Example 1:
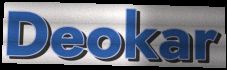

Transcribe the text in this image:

Deokar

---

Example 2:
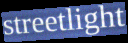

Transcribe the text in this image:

streetlight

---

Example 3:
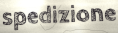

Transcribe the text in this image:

spedizione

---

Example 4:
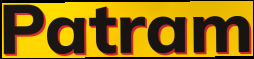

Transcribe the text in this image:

Patram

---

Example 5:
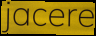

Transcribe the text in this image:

jacere